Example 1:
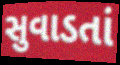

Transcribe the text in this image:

સુવાડતાં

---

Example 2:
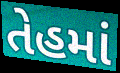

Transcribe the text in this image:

તેહમાં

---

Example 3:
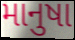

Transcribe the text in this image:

માનુષા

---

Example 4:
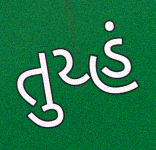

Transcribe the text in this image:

તુય્હં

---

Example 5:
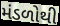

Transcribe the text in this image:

મંડળોથી